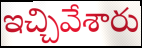
ఇచ్చివేశారు